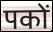
पकों